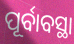
ପୂର୍ବାବସ୍ଥା